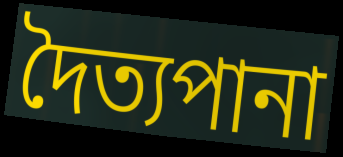
দৈত্যপানা